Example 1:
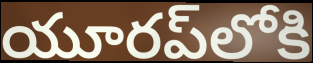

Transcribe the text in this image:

యూరప్‌లోకి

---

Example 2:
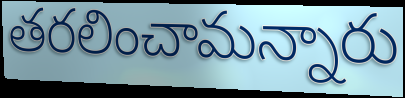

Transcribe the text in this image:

తరలించామన్నారు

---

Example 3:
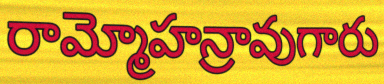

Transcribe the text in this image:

రామ్మోహన్రావుగారు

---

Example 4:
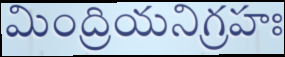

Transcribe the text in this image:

మింద్రియనిగ్రహః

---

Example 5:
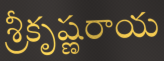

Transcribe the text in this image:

శ్రీకృష్ణరాయ